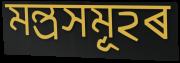
মন্ত্ৰসমূহৰ